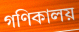
গণিকালয়